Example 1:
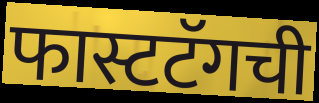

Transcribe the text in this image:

फास्टटॅगची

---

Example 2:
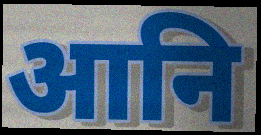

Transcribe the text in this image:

आनि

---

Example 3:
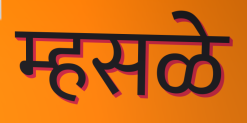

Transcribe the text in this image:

म्हसळे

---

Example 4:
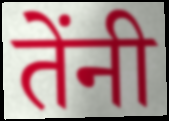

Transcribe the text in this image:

तेंनी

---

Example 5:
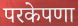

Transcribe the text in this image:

परकेपणा